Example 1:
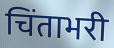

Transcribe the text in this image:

चिंताभरी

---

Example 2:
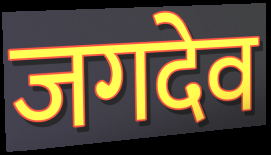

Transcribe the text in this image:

जगदेव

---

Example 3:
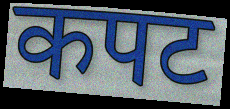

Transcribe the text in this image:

कपट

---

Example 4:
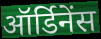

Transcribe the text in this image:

ऑर्डिनेंस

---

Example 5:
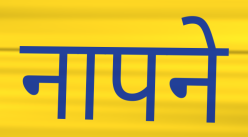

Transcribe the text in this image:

नापने